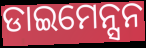
ଡାଇମେନ୍ସନ